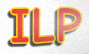
ILP